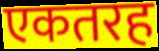
एकतरह